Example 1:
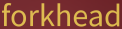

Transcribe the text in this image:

forkhead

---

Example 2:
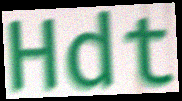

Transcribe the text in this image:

Hdt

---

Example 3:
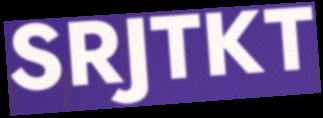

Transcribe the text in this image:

SRJTKT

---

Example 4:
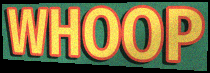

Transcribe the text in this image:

WHOOP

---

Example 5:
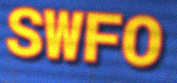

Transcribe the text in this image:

SWFO